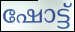
ഷോട്ട്